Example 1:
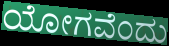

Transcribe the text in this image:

ಯೋಗವೆಂದು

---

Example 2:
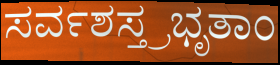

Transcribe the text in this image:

ಸರ್ವಶಸ್ತ್ರಭೃತಾಂ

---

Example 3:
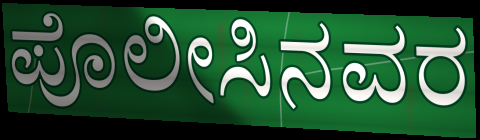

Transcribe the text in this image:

ಪೊಲೀಸಿನವರ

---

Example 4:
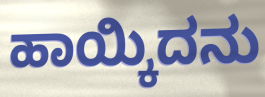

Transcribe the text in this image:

ಹಾಯ್ಕಿದನು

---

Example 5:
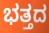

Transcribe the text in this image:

ಭತ್ತದ